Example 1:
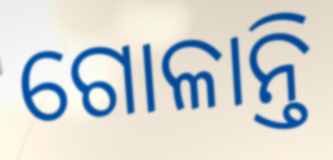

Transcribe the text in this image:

ଗୋଳାନ୍ତି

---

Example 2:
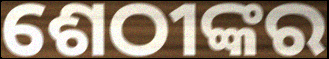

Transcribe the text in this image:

ଶେଠୀଙ୍କର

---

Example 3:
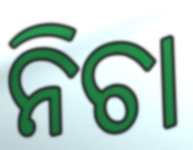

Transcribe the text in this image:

ନିଚା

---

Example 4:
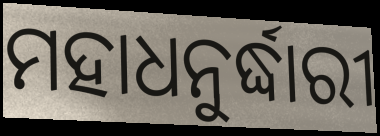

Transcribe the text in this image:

ମହାଧନୁର୍ଦ୍ଧାରୀ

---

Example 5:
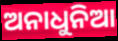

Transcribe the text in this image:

ଅନାଧୁନିଆ